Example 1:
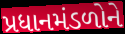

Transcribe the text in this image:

પ્રધાનમંડળોને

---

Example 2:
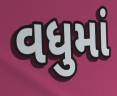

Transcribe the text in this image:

વધુમાં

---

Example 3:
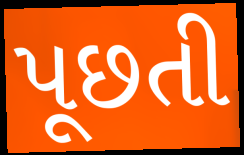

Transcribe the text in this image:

પૂછતી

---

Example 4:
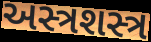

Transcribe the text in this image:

અસ્ત્રશસ્ત્ર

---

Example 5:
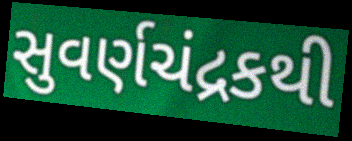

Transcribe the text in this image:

સુવર્ણચંદ્રકથી